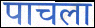
पाचला